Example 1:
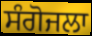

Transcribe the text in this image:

ਸੰਗੋਜਲਾ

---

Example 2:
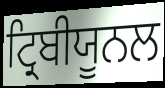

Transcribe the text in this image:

ਟ੍ਰਿਬੀਯੂਨਲ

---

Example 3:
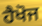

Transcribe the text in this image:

ਹੈਖੋਜ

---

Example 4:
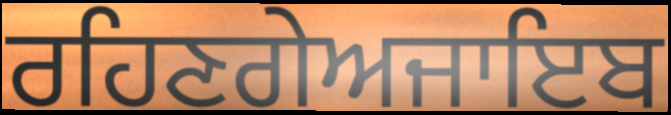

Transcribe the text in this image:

ਰਹਿਣਗੇਅਜਾਇਬ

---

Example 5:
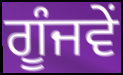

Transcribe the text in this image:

ਗੂੰਜਵੇਂ